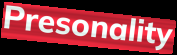
Presonality